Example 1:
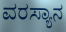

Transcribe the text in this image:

ವರಸ್ಯಾನ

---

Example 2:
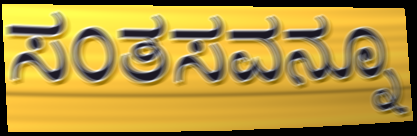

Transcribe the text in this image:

ಸಂತಸವನ್ನೂ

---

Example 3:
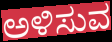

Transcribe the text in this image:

ಅಳಿಸುವ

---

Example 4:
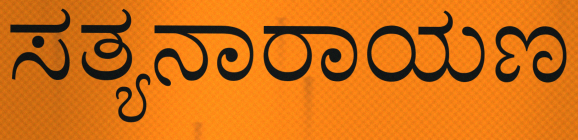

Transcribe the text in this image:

ಸತ್ಯನಾರಾಯಣ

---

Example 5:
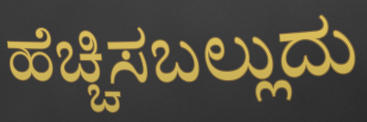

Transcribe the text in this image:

ಹೆಚ್ಚಿಸಬಲ್ಲುದು